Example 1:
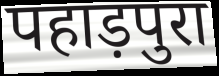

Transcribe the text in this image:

पहाड़पुरा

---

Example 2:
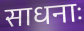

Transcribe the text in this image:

साधनाः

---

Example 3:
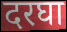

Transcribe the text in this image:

दरघा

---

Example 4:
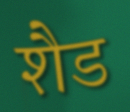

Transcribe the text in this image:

शैड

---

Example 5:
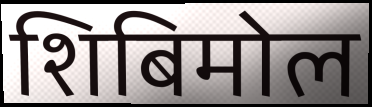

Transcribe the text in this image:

शिबिमोल